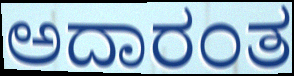
ಅದಾರಂತ